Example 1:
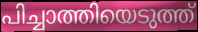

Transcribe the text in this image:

പിച്ചാത്തിയെടുത്ത്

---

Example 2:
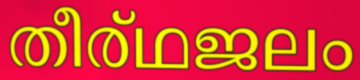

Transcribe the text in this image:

തീര്ഥജലം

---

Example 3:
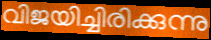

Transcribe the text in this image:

വിജയിച്ചിരിക്കുന്നു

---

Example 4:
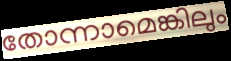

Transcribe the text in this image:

തോന്നാമെങ്കിലും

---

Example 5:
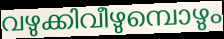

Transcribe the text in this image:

വഴുക്കിവീഴുമ്പൊഴും